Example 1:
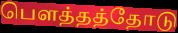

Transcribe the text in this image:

பௌத்தத்தோடு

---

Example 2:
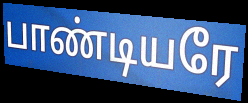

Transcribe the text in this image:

பாண்டியரே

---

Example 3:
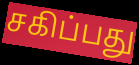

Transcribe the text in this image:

சகிப்பது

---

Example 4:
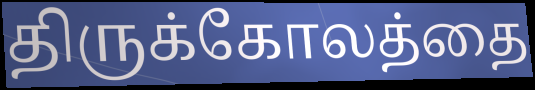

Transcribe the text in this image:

திருக்கோலத்தை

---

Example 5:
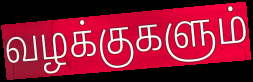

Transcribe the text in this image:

வழக்குகளும்